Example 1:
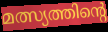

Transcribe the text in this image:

മത്സ്യത്തിന്റെ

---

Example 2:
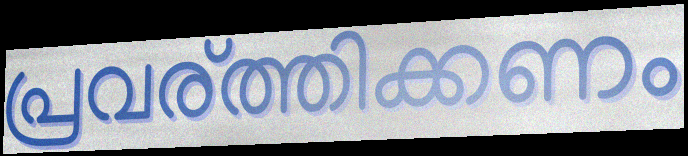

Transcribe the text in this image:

പ്രവര്ത്തിക്കണം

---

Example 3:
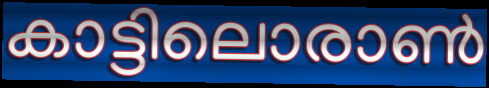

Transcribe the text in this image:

കാട്ടിലൊരാൺ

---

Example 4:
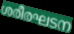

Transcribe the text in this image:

ശരീരഘടന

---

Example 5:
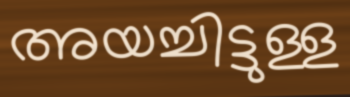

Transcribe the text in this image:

അയച്ചിട്ടുള്ള